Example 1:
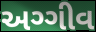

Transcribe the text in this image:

અગ્ગીવ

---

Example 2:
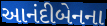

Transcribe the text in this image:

આનંદીબેનના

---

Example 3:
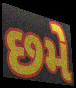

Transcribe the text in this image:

છમે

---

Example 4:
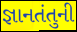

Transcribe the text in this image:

જ્ઞાનતંતુની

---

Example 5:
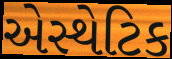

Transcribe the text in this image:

એસ્થેટિક